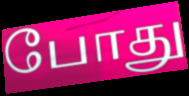
போது